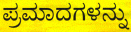
ಪ್ರಮಾದಗಳನ್ನು